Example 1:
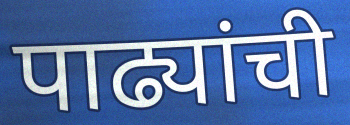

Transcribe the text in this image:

पाढ्यांची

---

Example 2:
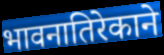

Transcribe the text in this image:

भावनातिरेकाने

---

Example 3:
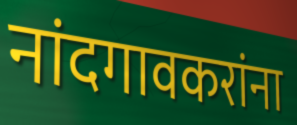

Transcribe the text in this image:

नांदगावकरांना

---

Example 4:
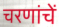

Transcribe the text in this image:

चरणांचें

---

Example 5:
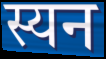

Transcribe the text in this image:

स्यन